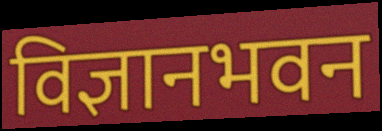
विज्ञानभवन